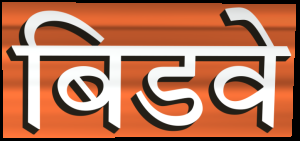
बिडवे